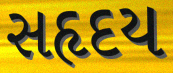
સહૃદય